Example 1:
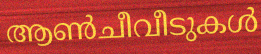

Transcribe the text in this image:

ആൺചീവീടുകൾ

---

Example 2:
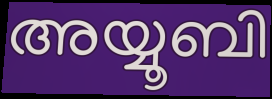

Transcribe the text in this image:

അയ്യൂബി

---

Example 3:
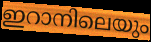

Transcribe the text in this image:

ഇറാനിലെയും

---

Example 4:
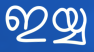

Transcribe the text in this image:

ഇയ്യ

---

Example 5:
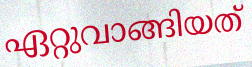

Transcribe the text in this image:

ഏറ്റുവാങ്ങിയത്